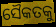
ସୈକତକୁ